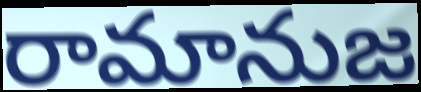
రామానుజ